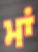
ਮਾਂ